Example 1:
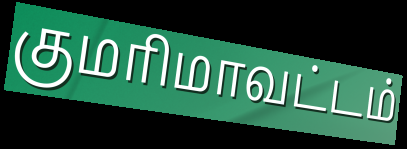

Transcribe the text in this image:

குமரிமாவட்டம்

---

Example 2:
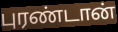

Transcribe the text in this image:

புரண்டான்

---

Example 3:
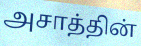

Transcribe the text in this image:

அசாத்தின்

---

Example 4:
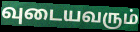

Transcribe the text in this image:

வுடையவரும்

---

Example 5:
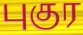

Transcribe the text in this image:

புகுர